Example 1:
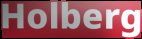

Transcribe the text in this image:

Holberg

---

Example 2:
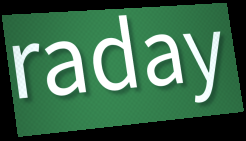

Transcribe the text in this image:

raday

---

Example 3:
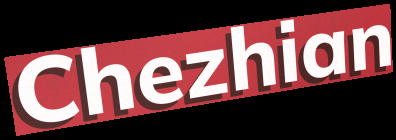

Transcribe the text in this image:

Chezhian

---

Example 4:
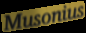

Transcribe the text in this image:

Musonius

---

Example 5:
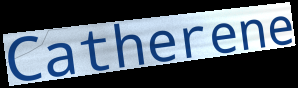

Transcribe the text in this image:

Catherene